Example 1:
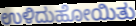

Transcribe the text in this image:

ಉಳಿದುಹೋಯಿತು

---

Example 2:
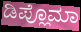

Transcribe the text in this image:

ಡಿಪ್ಲೊಮಾ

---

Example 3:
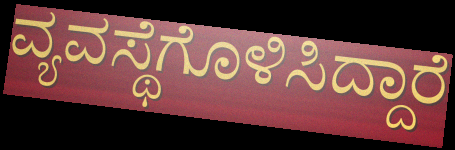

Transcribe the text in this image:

ವ್ಯವಸ್ಥೆಗೊಳಿಸಿದ್ದಾರೆ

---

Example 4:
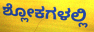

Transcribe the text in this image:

ಶ್ಲೋಕಗಳಲ್ಲಿ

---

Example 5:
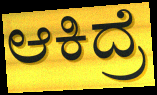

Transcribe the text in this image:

ಆಕಿದ್ರೆ